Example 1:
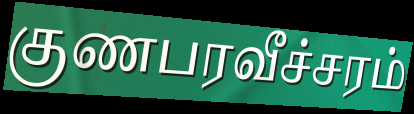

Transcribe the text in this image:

குணபரவீச்சரம்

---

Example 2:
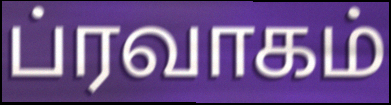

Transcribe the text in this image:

ப்ரவாகம்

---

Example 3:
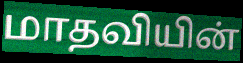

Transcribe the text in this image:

மாதவியின்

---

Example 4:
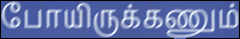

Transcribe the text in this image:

போயிருக்கணும்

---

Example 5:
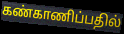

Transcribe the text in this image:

கண்காணிப்பதில்